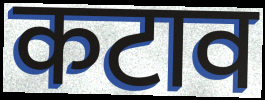
कटाव